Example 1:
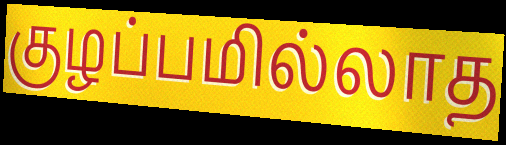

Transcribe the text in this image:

குழப்பமில்லாத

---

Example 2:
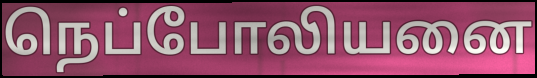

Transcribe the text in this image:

நெப்போலியனை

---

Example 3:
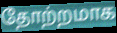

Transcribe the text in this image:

தோற்றமாக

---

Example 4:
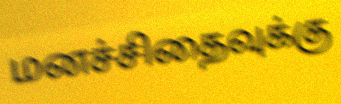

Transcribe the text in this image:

மனச்சிதைவுக்கு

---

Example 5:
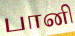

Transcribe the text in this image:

பானி